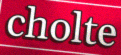
cholte